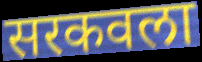
सरकवला